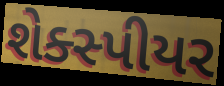
શેક્સ્પીયર